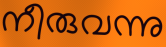
നീരുവന്നു